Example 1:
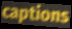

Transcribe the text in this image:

captions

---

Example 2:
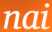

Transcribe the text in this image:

nai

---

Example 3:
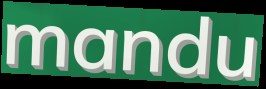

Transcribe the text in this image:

mandu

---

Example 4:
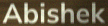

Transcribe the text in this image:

Abishek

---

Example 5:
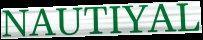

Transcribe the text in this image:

NAUTIYAL